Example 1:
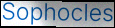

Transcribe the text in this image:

Sophocles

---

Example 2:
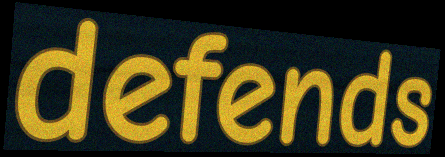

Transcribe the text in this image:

defends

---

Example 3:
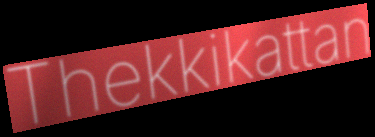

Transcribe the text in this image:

Thekkikattan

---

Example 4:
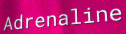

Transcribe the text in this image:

Adrenaline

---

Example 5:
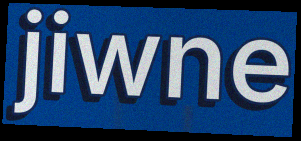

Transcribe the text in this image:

jiwne